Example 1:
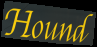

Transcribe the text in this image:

Hound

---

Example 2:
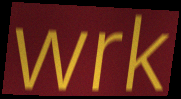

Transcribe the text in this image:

wrk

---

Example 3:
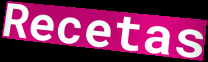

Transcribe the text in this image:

Recetas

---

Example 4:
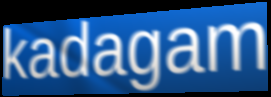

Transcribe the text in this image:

kadagam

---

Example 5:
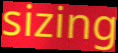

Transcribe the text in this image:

sizing